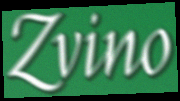
Zvino